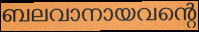
ബലവാനായവന്റെ